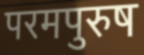
परमपुरुष